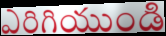
ఎరిగియుండి